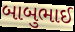
બાબુભાઈ